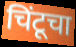
चिंटूचा